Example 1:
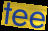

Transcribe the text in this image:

tee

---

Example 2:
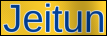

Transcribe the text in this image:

Jeitun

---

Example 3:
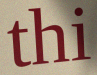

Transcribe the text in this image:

thi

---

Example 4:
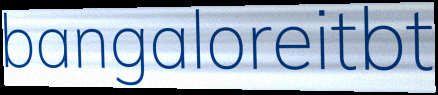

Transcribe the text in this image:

bangaloreitbt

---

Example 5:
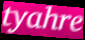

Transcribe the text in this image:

tyahre